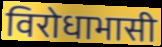
विरोधाभासी